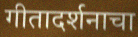
गीतादर्शनाचा